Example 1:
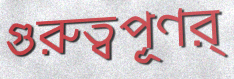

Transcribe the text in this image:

গুরুত্বপূণর্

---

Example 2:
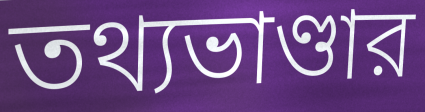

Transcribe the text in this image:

তথ্যভাণ্ডার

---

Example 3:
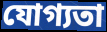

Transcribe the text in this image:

যোগ্যতা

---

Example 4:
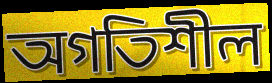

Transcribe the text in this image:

অগতিশীল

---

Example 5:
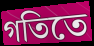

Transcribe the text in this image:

গতিতে